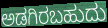
ಅಡಗಿರಬಹುದು